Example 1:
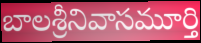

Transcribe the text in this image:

బాలశ్రీనివాసమూర్తి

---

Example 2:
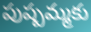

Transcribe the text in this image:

పుష్పమ్మకు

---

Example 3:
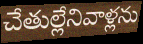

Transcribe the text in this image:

చేతుల్లేనివాళ్లను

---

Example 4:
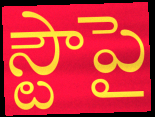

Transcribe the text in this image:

స్టౌపై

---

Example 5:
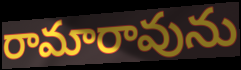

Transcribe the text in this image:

రామారావును